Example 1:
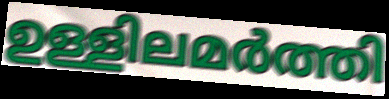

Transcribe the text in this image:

ഉള്ളിലമർത്തി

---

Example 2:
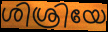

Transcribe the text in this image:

ശിശ്രിയേ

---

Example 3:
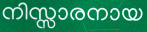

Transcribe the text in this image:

നിസ്സാരനായ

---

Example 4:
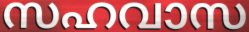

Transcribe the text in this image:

സഹവാസ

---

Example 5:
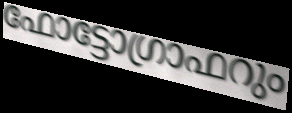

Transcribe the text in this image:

ഫോട്ടോഗ്രാഫറും